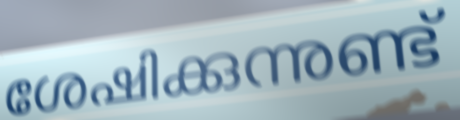
ശേഷിക്കുന്നുണ്ട്